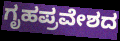
ಗೃಹಪ್ರವೇಶದ